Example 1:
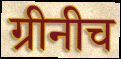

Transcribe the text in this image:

ग्रीनीच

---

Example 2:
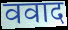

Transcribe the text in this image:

ववाद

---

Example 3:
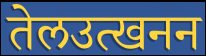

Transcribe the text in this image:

तेलउत्खनन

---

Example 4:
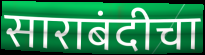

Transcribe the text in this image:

साराबंदीचा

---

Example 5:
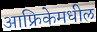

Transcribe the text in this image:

आफ्रिकेमधील